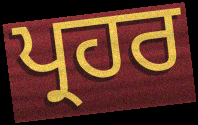
ਪ੍ਰਹਰ